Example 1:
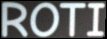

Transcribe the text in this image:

ROTI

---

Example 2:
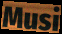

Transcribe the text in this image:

Musi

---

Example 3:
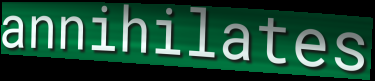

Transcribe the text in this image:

annihilates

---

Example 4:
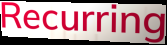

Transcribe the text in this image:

Recurring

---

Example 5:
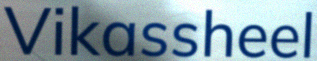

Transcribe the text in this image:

Vikassheel